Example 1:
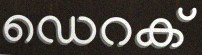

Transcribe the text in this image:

ഡെറക്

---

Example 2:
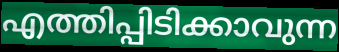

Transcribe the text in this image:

എത്തിപ്പിടിക്കാവുന്ന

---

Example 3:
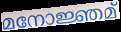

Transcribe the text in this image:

മനോജ്ഞമ്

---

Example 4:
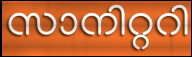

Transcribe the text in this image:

സാനിറ്ററി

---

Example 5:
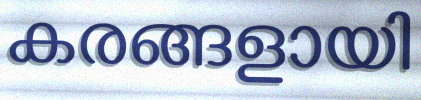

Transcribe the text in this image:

കരങ്ങളായി